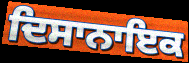
ਦਿਸਾਨਾਇਕ